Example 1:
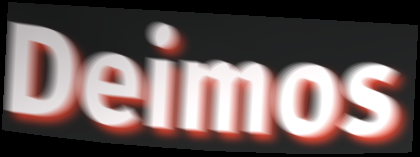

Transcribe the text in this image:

Deimos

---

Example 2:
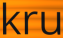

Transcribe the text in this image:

kru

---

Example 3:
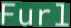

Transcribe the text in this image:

Furl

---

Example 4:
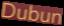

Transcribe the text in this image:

Dubun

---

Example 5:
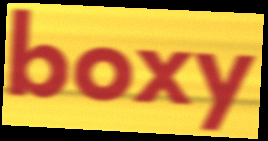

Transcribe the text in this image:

boxy